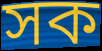
সক